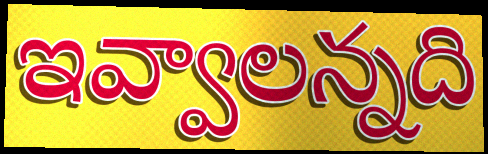
ఇవ్వాలన్నది